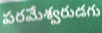
పరమేశ్వరుడగు